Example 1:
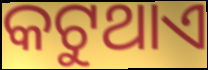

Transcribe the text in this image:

କଟୁଥାଏ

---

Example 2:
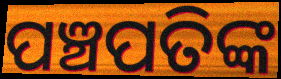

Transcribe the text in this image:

ପଞ୍ଚପତିଙ୍କ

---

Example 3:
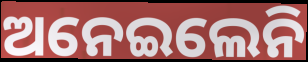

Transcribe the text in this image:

ଅନେଇଲେନି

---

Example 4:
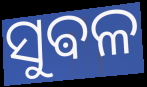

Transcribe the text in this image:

ସୁଵଳ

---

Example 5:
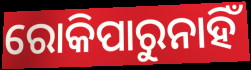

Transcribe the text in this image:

ରୋକିପାରୁନାହିଁ